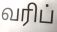
வரிப்